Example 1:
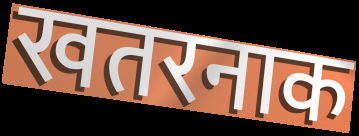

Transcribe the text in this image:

खतरनाक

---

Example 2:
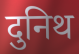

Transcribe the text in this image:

दुनिथ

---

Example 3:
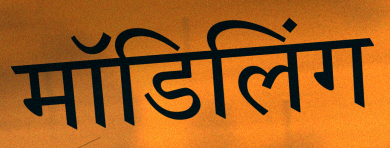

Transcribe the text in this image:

मॉडिलिंग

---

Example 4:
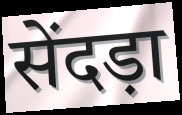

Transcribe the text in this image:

सेंदड़ा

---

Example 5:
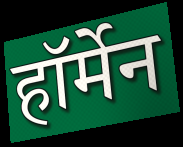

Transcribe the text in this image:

हॉर्मेन